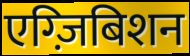
एग्ज़िबिशन